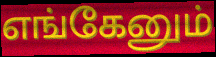
எங்கேனும்